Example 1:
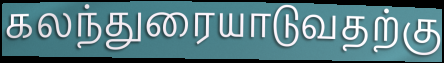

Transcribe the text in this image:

கலந்துரையாடுவதற்கு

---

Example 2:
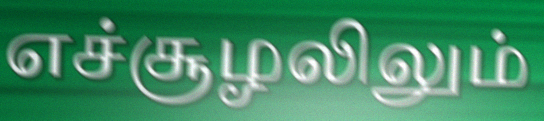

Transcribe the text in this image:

எச்சூழலிலும்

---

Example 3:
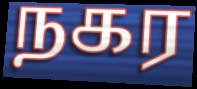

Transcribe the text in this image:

நகர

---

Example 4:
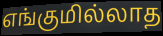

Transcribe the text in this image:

எங்குமில்லாத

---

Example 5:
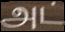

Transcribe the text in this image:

அட்